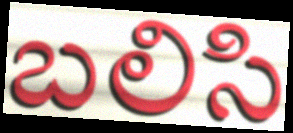
బలిసి